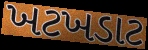
ખટખડાટ